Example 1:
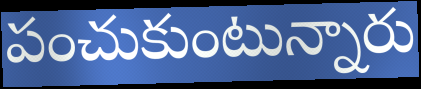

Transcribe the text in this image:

పంచుకుంటున్నారు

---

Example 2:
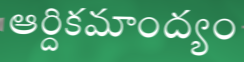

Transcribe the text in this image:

ఆర్దికమాంద్యం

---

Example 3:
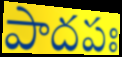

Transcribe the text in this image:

పాదపః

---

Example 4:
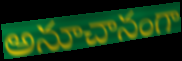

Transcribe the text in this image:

అనూచానంగా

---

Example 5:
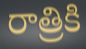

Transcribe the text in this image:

రాత్రికి